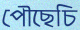
পৌছেচি